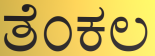
ತೆಂಕಲ